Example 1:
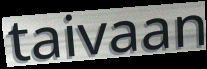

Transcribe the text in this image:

taivaan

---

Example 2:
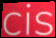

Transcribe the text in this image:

cis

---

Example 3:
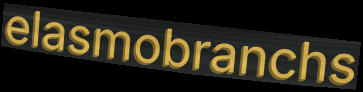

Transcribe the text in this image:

elasmobranchs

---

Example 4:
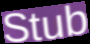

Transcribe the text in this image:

Stub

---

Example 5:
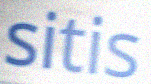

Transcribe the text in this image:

sitis